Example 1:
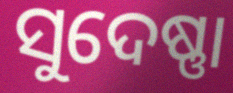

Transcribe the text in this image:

ସୁଦେଷ୍ଣା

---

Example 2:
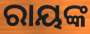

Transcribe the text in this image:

ରାୟଙ୍କ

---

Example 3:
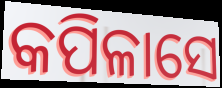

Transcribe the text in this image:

କପିଳାସେ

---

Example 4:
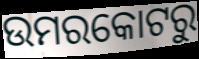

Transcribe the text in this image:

ଉମରକୋଟରୁ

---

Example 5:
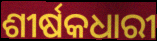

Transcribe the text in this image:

ଶୀର୍ଷକଧାରୀ